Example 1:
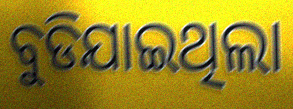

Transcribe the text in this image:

ବୁଡିଯାଇଥିଲା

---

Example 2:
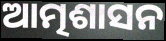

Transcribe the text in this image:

ଆତ୍ମଶାସନ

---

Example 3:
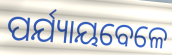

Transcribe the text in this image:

ପର୍ଯ୍ୟାୟବେଳେ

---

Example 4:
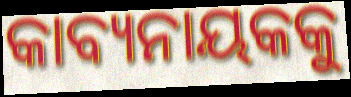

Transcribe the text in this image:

କାବ୍ୟନାୟକକୁ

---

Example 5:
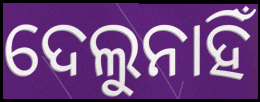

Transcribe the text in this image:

ଦେଲୁନାହିଁ